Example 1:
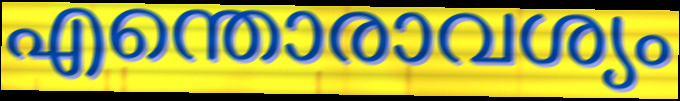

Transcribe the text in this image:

എന്തൊരാവശ്യം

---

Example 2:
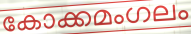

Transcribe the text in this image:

കോക്കമംഗലം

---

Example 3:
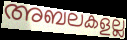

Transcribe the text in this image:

അബലകളല്ല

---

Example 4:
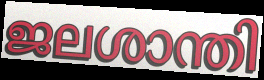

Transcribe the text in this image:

ജലശാന്തി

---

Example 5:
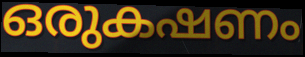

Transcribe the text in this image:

ഒരുകഷണം